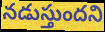
నడుస్తుందని